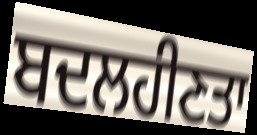
ਬਦਲਹੀਣਤਾ